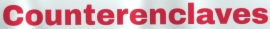
Counterenclaves